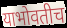
याभोवतीच